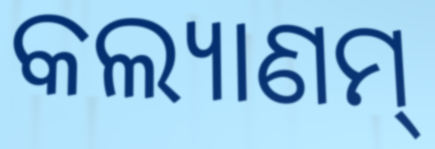
କଲ୍ୟାଣମ୍